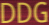
DDG